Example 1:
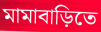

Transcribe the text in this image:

মামাবাড়িতে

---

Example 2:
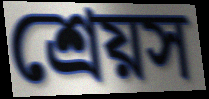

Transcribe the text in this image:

শ্রেয়স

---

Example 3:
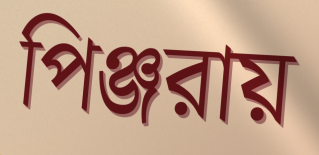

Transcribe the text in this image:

পিঞ্জরায়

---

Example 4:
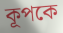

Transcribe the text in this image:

কূপকে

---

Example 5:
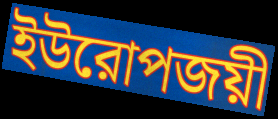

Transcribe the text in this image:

ইউরোপজয়ী